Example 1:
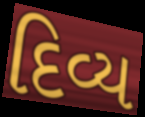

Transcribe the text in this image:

દિવ્ય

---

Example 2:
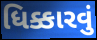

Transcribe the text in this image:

ધિક્કારવું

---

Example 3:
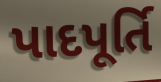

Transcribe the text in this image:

પાદપૂર્તિ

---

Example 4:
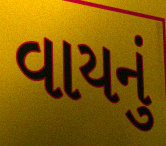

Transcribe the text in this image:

વાયનું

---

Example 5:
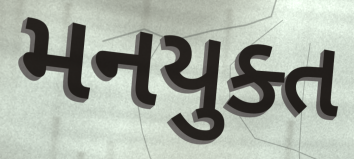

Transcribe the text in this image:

મનયુક્ત